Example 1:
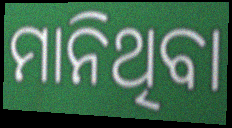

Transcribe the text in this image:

ମାନିଥିବା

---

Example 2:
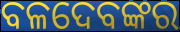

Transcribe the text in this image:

ବଳଦେବଙ୍କର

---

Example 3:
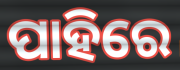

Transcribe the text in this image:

ପାହିରେ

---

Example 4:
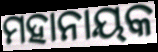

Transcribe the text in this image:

ମହାନାୟକ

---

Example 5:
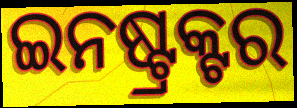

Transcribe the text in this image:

ଇନଷ୍ଟ୍ରକ୍ଟର